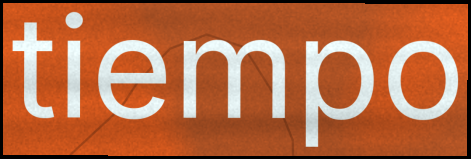
tiempo